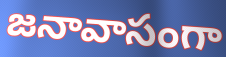
జనావాసంగా